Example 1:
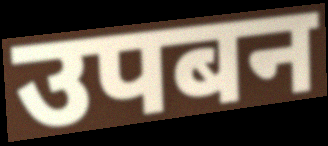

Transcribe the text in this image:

उपबन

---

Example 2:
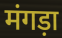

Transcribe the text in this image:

मंगड़ा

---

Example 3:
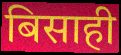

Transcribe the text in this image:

बिसाही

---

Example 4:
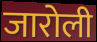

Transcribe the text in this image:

जारोली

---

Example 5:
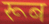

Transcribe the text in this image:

रूब